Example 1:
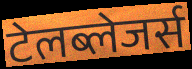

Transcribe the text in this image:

टेलब्लेजर्स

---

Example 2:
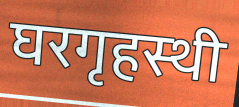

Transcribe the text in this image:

घरगृहस्थी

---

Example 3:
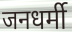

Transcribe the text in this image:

जनधर्मी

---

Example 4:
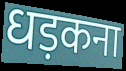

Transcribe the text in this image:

धड़कना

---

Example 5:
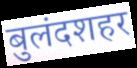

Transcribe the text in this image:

बुलंदशहर